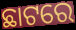
ଛାଟରେ